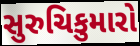
સુરુચિકુમારો